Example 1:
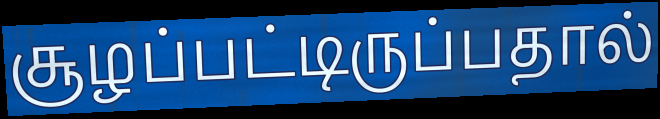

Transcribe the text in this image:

சூழப்பட்டிருப்பதால்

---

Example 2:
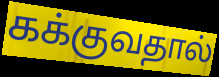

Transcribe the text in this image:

கக்குவதால்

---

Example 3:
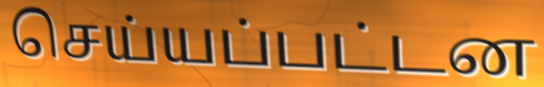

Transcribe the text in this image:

செய்யப்பட்டன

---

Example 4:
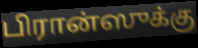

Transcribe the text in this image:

பிரான்ஸுக்கு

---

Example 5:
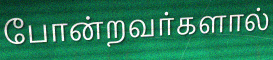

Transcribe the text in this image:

போன்றவர்களால்